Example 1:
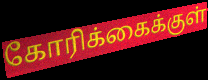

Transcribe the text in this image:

கோரிக்கைக்குள்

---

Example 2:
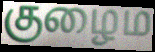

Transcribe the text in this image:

குழைம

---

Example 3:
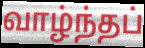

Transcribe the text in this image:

வாழ்ந்தப்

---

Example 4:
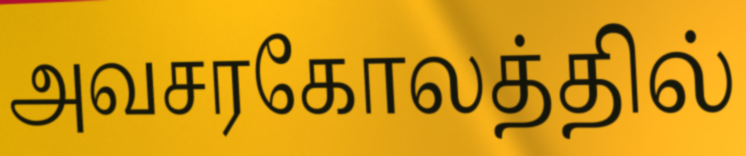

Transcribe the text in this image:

அவசரகோலத்தில்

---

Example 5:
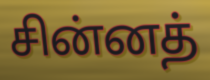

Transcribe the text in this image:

சின்னத்